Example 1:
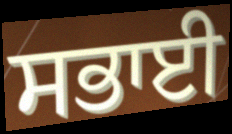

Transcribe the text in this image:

ਸਭਾਈ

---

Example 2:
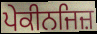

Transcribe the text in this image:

ਪੇਕੀਨਜਿਜ਼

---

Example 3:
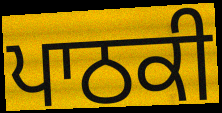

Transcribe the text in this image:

ਪਾਠਕੀ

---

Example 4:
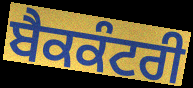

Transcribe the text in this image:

ਬੈਕਕੰਟਰੀ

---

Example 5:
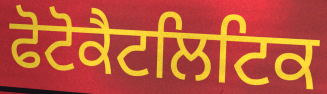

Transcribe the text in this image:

ਫੋਟੋਕੈਟਲਿਟਿਕ